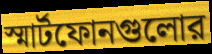
স্মার্টফোনগুলোর